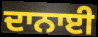
ਦਾਨਾਈ